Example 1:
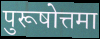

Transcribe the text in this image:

पुरूषोत्तमा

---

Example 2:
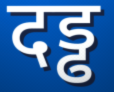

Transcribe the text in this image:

दड्ढ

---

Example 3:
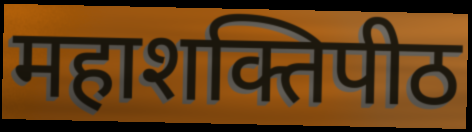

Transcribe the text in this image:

महाशक्तिपीठ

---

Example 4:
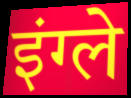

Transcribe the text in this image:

इंग्ले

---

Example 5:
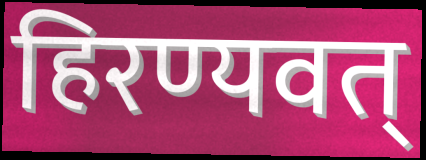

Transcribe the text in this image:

हिरण्यवत्